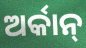
ଅର୍କାନ୍